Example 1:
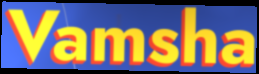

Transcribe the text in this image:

Vamsha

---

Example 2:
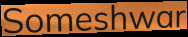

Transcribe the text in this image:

Someshwar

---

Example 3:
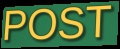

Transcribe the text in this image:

POST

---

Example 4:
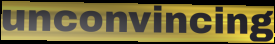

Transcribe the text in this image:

unconvincing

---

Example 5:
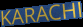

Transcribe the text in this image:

KARACHI